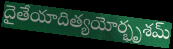
దైతేయాదిత్యయోర్భృశమ్